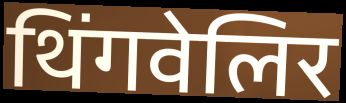
थिंगवेलिर